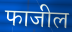
फाजील